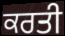
ਕਰਤੀ